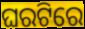
ଘରଟିରେ